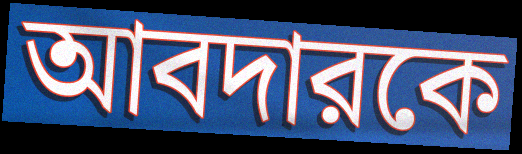
আবদারকে